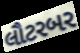
લૌટરબર